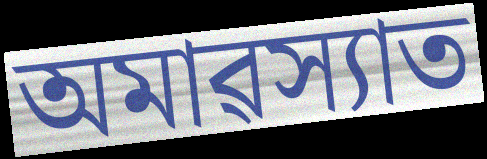
অমাৱস্যাত